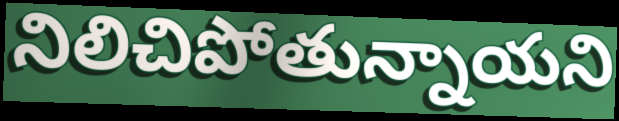
నిలిచిపోతున్నాయని